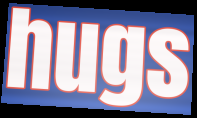
hugs